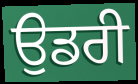
ਉਡਰੀ